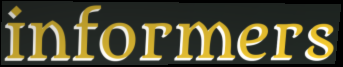
informers